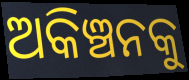
ଅକିଞ୍ଚନକୁ